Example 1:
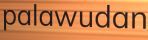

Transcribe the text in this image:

palawudan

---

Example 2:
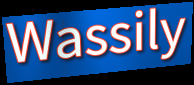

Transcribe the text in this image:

Wassily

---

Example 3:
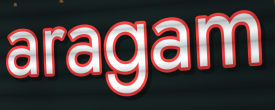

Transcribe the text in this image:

aragam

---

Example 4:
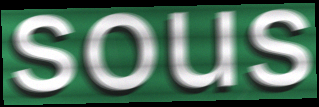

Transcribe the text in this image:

sous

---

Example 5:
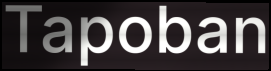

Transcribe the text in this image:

Tapoban